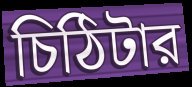
চিঠিটার